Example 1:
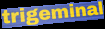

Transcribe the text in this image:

trigeminal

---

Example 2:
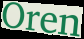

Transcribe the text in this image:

Oren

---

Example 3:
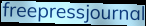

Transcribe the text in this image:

freepressjournal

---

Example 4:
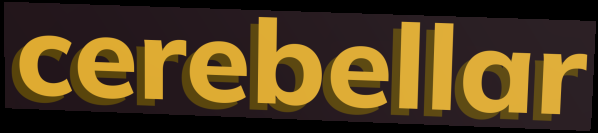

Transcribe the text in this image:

cerebellar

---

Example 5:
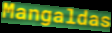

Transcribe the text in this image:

Mangaldas